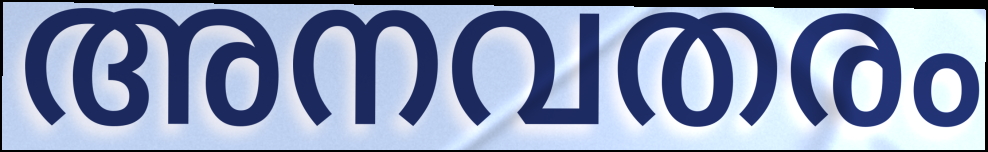
അനവതരം